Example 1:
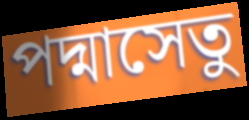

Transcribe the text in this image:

পদ্মাসেতু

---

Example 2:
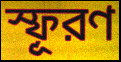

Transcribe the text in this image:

স্ফূরণ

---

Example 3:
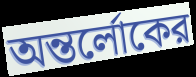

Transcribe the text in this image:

অন্তর্লোকের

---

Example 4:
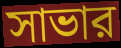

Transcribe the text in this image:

সাভার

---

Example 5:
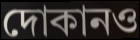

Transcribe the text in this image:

দোকানও